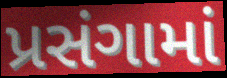
પ્રસંગામાં